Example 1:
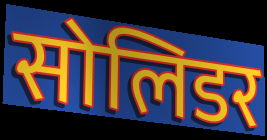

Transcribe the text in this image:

सोलिडर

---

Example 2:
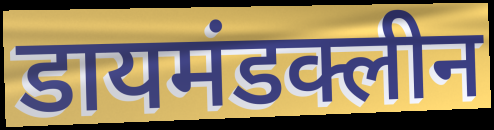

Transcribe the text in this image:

डायमंडक्लीन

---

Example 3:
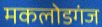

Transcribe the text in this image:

मकलोडगंज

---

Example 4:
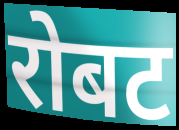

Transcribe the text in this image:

रोबट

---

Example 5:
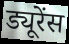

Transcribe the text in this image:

ड्यूरेंस